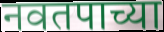
नवतपाच्या